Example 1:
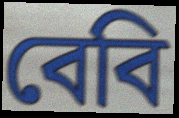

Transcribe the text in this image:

বেবি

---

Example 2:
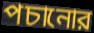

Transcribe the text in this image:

পচানোর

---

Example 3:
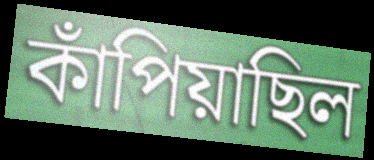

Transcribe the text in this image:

কাঁপিয়াছিল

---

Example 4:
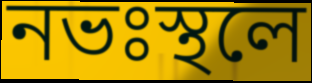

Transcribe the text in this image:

নভঃস্থলে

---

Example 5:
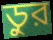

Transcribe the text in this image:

ডুর